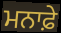
ਮਨਾਫ਼ੇ